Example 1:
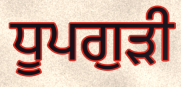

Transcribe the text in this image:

ਧੂਪਗੁੜੀ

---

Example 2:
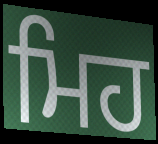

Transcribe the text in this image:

ਮਿਹ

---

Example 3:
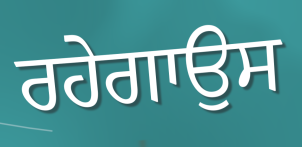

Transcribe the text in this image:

ਰਹੇਗਾਉਸ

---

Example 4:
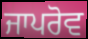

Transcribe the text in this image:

ਜਾਪਰੋਵ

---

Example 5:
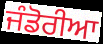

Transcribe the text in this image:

ਜੰਡੋਰੀਆ